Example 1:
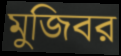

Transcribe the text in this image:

মুজিবর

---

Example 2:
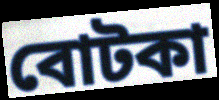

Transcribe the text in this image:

বোটকা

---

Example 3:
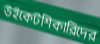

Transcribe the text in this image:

উইকেটশিকারিদের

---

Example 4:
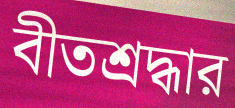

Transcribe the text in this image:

বীতশ্রদ্ধার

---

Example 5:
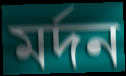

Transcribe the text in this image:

মর্দন